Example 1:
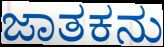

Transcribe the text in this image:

ಜಾತಕನು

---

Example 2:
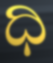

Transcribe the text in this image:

ಧಿ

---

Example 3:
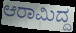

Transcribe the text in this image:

ಆರಾಮಿದ್ದ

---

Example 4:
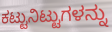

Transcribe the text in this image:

ಕಟ್ಟುನಿಟ್ಟುಗಳನ್ನು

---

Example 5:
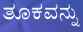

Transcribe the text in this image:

ತೂಕವನ್ನು